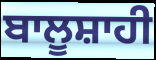
ਬਾਲੂਸ਼ਾਹੀ